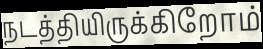
நடத்தியிருக்கிறோம்